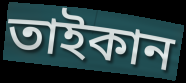
তাইকান